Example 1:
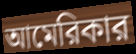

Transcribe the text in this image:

আমেরিকার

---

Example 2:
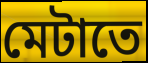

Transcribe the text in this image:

মেটাতে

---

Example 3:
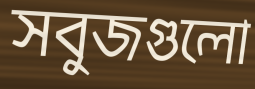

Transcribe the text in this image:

সবুজগুলো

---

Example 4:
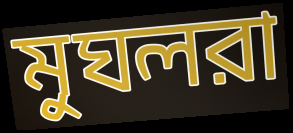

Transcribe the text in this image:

মুঘলরা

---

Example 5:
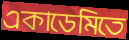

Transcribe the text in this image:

একাডেমিতে